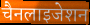
चैनलाइजेशन